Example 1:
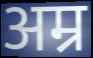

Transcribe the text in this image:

अम्र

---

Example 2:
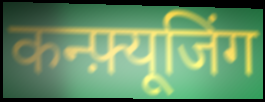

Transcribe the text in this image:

कन्फ़्यूजिंग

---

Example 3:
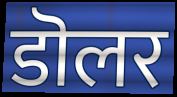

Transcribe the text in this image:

डॊलर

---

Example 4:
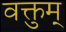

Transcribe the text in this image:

वक्तुम्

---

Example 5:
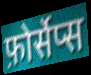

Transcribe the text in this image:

फ़ोर्सेप्स